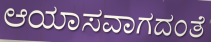
ಆಯಾಸವಾಗದಂತೆ